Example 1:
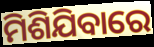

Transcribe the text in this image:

ମିଶିଯିବାରେ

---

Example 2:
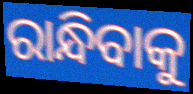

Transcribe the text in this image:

ରାନ୍ଧିବାକୁ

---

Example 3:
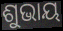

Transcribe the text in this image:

ଶୁଭାୟ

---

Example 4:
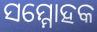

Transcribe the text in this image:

ସମ୍ମୋହକ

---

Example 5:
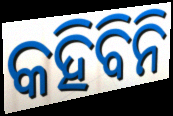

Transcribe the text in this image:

କହିବିନି